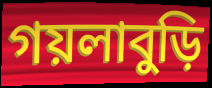
গয়লাবুড়ি